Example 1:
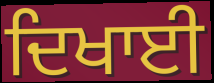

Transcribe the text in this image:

ਦਿਖਾਈ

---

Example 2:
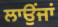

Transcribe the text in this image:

ਲਾਉਂਜਾਂ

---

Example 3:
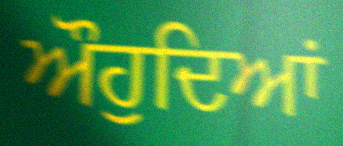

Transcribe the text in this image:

ਔਹੁਦਿਆਂ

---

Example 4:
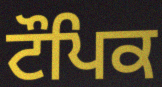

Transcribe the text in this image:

ਟੌਪਿਕ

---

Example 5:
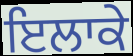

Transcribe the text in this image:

ਇਲਾਕੇ